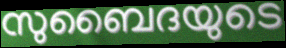
സുബൈദയുടെ